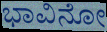
ಭಾವಿನೋ